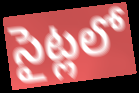
సైట్లలో